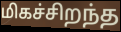
மிகச்சிறந்த